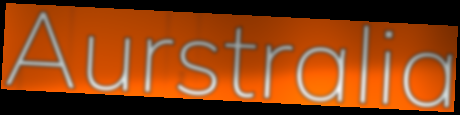
Aurstralia